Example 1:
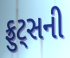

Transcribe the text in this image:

ફ્રુટ્સની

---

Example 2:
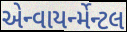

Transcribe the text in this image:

એન્વાયર્ન્મેન્ટલ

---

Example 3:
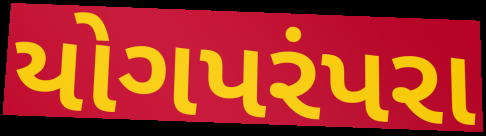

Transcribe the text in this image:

યોગપરંપરા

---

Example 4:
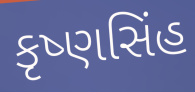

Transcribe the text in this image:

કૃષ્ણસિંહ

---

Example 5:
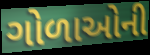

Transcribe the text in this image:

ગોળાઓની